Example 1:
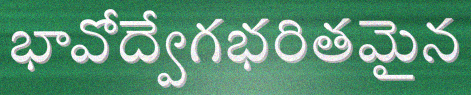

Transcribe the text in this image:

భావోద్వేగభరితమైన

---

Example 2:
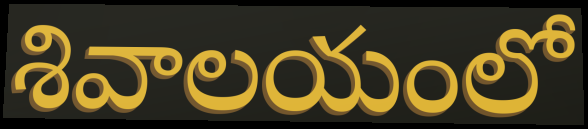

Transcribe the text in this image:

శివాలయంలో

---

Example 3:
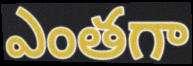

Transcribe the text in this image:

ఎంతగా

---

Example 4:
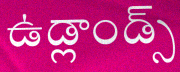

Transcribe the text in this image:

ఉడ్లాండ్స్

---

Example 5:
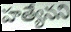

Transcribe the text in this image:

హత్యేనని